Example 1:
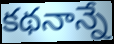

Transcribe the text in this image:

కథనాన్నే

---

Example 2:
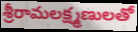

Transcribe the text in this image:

శ్రీరామలక్ష్మణులతో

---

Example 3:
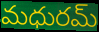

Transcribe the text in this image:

మధురమ్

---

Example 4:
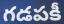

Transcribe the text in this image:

గడపకీ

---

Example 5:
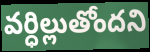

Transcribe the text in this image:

వర్ధిల్లుతోందని